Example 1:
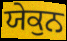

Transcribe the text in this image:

ਯੇਕੁਨ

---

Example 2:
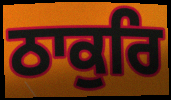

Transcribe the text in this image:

ਠਾਕੁਰਿ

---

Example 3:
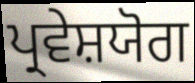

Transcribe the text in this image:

ਪ੍ਰਵੇਸ਼ਯੋਗ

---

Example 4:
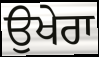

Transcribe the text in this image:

ਉਖੇਰਾ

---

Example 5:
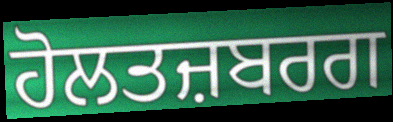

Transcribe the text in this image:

ਹੋਲਤਜ਼ਬਰਗ